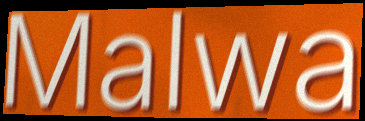
Malwa